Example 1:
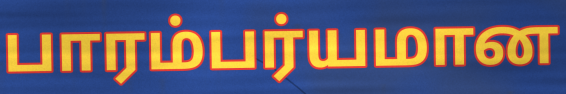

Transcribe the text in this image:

பாரம்பர்யமான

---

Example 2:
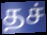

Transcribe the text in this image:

தச்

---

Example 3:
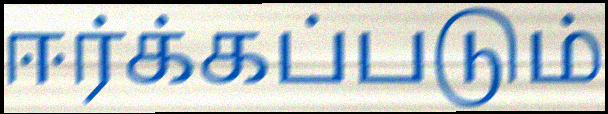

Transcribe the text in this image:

ஈர்க்கப்படும்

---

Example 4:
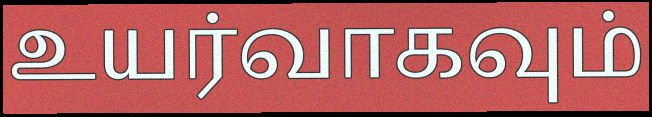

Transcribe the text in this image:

உயர்வாகவும்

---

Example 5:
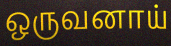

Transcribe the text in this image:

ஒருவனாய்